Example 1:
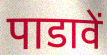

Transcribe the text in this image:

पाडावें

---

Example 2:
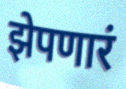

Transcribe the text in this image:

झेपणारं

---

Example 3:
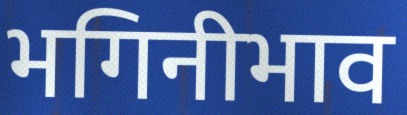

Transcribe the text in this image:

भगिनीभाव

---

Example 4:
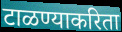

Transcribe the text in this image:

टाळण्याकरिता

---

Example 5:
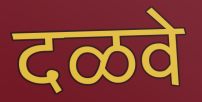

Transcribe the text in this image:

दळवे